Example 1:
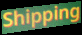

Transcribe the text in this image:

Shipping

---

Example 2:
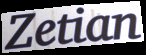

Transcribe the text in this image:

Zetian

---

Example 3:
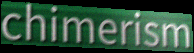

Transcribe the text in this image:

chimerism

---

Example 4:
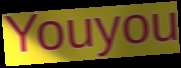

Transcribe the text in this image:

Youyou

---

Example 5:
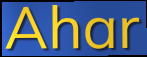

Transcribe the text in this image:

Ahar